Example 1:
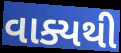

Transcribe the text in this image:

વાક્યથી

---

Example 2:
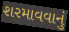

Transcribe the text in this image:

શરમાવવાનું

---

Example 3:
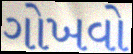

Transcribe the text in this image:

ગોખવો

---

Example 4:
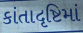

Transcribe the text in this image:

કાંતાદૃષ્ટિમાં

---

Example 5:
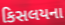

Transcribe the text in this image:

કિસલયના